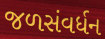
જળસંવર્ધન